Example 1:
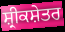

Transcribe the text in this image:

ਸ਼੍ਰੀਕਸ਼ੇਤਰ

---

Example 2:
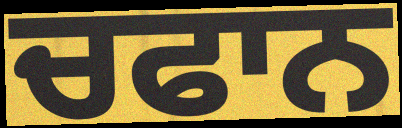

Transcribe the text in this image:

ਚਫਾਨ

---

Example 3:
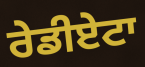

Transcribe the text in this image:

ਰੇਡੀਏਟਾ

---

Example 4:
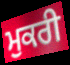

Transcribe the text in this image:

ਮੁਕਰੀ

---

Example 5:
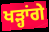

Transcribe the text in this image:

ਖੜ੍ਹਾਂਗੇ